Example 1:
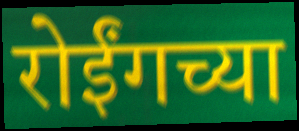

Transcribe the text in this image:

रोईंगच्या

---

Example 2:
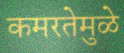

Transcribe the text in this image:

कमरतेमुळे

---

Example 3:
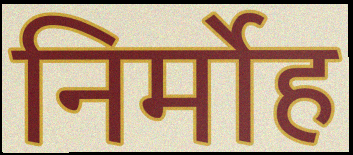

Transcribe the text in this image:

निर्मोह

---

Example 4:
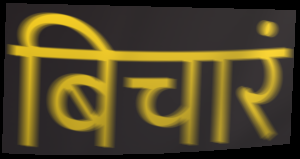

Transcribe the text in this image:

बिचारं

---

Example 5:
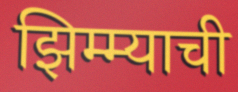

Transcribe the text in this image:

झिम्म्याची